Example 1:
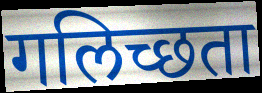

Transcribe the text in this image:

गलिच्छता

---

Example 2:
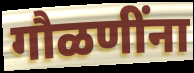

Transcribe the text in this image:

गौळणींना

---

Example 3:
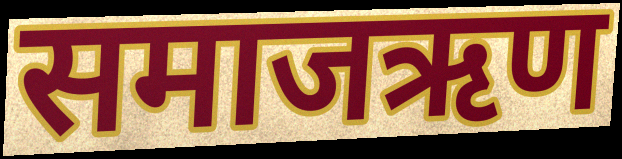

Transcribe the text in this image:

समाजऋण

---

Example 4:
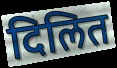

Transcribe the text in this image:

दिलित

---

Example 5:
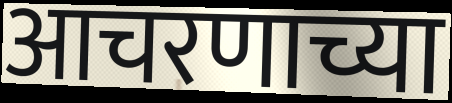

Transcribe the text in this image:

आचरणाच्या